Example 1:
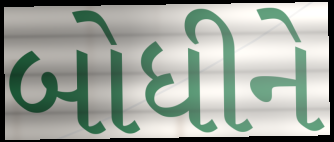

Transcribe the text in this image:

બોધીને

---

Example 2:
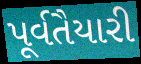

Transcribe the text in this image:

પૂર્વતૈયારી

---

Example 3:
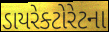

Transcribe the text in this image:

ડાયરેક્ટોરેટના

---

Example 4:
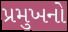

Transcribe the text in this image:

પ્રમુખનો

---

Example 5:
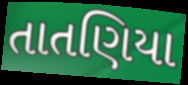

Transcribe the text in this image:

તાતણિયા